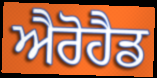
ਐਰੋਹੈਡ